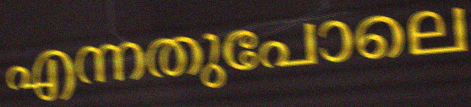
എന്നതുപോലെ